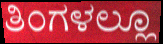
ತಿಂಗಳಲ್ಲೂ